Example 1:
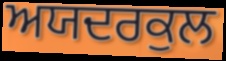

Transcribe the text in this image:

ਅਯਦਰਕੁਲ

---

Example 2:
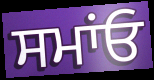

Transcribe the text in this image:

ਸਮਾਂਓ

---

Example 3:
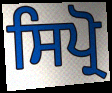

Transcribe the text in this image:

ਸਿਪ੍ਰੋ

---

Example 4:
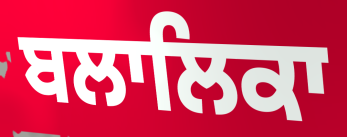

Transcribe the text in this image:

ਬਲਾਲਿਕਾ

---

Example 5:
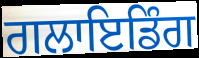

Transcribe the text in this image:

ਗਲਾਇਡਿੰਗ